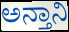
ಅನ್ತಾನಿ